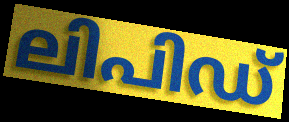
ലിപിഡ്